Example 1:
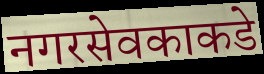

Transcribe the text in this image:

नगरसेवकाकडे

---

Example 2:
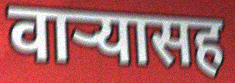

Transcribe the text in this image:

वार्‍यासह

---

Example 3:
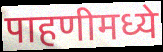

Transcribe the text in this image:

पाहणीमध्ये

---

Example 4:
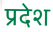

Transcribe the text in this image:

प्रदेश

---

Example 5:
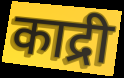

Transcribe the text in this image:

काद्री